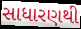
સાધારણથી